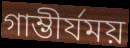
গাম্ভীর্যময়